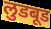
लुडबूड